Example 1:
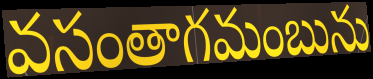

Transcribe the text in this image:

వసంతాగమంబును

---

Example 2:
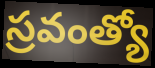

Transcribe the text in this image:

స్రవంత్యో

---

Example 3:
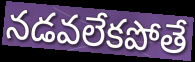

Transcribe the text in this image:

నడవలేకపోతే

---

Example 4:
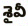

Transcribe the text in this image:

శైవీ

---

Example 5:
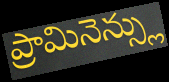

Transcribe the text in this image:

ప్రామినెన్స్లు